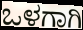
ಒಳಗಾಗಿ